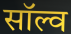
सॉल्व